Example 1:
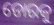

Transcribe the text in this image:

ଡୋରକୁ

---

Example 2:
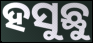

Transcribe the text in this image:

ହସୁଛୁ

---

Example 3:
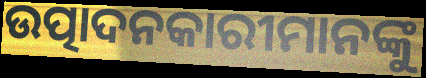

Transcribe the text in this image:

ଉତ୍ପାଦନକାରୀମାନଙ୍କୁ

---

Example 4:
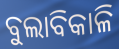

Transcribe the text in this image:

ବୁଲାବିକାଳି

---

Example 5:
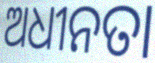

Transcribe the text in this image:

ଅଧୀନତା